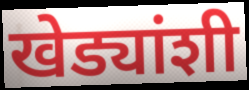
खेड्यांशी